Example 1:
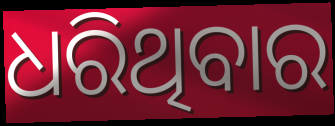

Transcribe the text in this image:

ଧରିଥିବାର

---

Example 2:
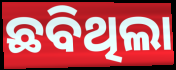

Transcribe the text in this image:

ଛବିଥିଲା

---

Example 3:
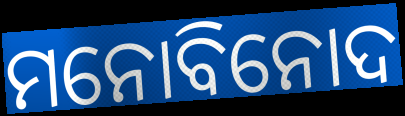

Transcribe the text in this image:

ମନୋବିନୋଦ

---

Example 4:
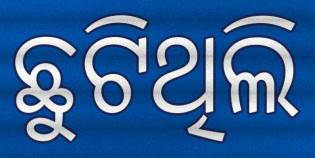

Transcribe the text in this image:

ଛୁଟିଥିଲି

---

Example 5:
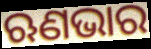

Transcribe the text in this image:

ଋଣଭାର